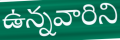
ఉన్నవారిని